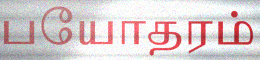
பயோதரம்